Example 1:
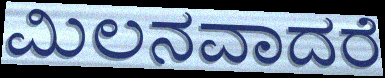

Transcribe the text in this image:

ಮಿಲನವಾದರೆ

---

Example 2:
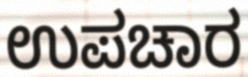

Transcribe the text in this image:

ಉಪಚಾರ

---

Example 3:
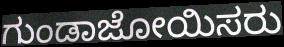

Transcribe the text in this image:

ಗುಂಡಾಜೋಯಿಸರು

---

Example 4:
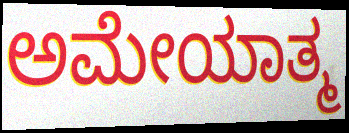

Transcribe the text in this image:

ಅಮೇಯಾತ್ಮ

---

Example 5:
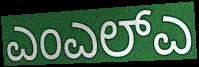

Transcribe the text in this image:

ಎಂಎಲ್ಎ